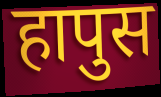
हापुस